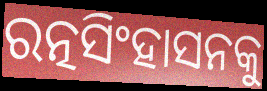
ରତ୍ନସିଂହାସନକୁ